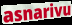
asnarivu